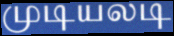
முடியலடி